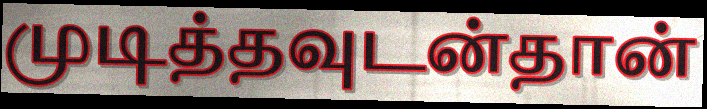
முடித்தவுடன்தான்